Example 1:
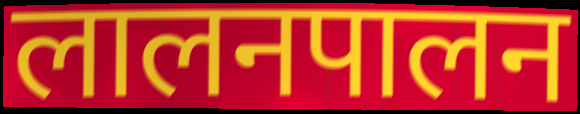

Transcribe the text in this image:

लालनपालन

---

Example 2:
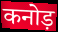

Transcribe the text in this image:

कनोड़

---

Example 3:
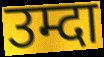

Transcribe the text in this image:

उम्दा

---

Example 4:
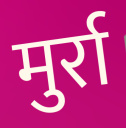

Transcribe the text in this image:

मुर्रा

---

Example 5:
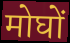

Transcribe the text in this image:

मोघों